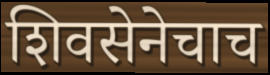
शिवसेनेचाच